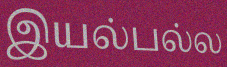
இயல்பல்ல